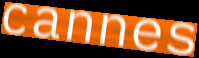
cannes